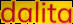
dalita